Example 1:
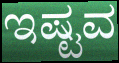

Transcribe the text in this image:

ಇಷ್ಟವ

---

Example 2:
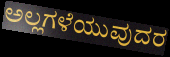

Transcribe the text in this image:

ಅಲ್ಲಗಳೆಯುವುದರ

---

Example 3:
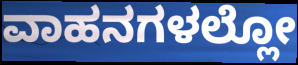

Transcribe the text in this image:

ವಾಹನಗಳಲ್ಲೋ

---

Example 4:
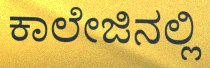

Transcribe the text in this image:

ಕಾಲೇಜಿನಲ್ಲಿ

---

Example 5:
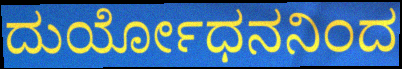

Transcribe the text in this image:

ದುರ್ಯೋಧನನಿಂದ